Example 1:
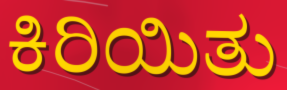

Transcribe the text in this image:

ಕಿರಿಯಿತು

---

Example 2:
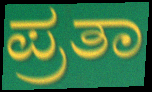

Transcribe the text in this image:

ಪ್ರತಾ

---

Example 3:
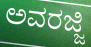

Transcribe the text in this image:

ಅವರಜ್ಜಿ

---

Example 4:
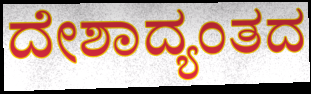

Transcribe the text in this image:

ದೇಶಾದ್ಯಂತದ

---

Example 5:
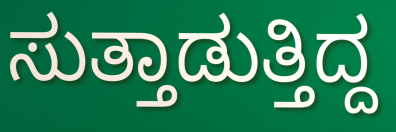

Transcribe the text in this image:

ಸುತ್ತಾಡುತ್ತಿದ್ದ